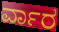
ರ್ವಾರ